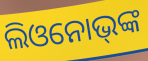
ଲିଓନୋଭ୍‌ଙ୍କ